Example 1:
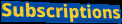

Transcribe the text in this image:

Subscriptions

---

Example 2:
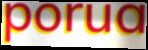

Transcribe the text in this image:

porua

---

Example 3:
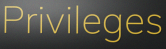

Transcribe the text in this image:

Privileges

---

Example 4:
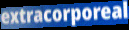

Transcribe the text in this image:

extracorporeal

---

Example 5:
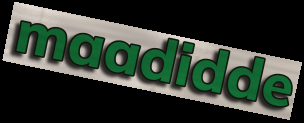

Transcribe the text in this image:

maadidde